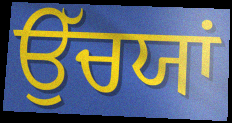
ਉੱਚਯਾਂ